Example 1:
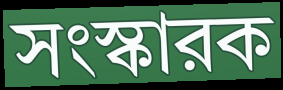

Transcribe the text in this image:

সংস্কারক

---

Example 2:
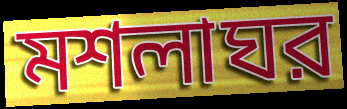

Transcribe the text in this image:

মশলাঘর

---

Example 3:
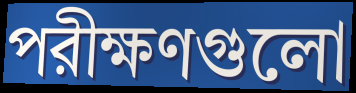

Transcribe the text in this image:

পরীক্ষণগুলো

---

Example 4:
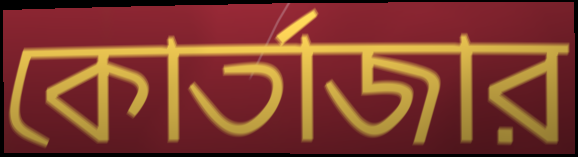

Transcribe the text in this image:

কোর্তাজার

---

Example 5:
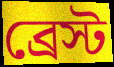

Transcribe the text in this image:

ব্রেস্ট